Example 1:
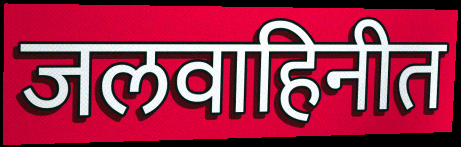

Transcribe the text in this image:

जलवाहिनीत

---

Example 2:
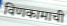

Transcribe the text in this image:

विणकामाची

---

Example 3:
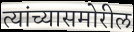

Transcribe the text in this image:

त्यांच्यासमोरील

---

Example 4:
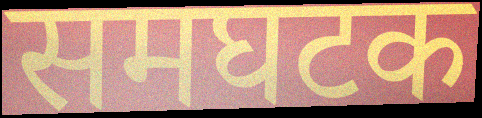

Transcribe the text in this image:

समघटक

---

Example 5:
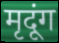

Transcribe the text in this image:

मृदूंग